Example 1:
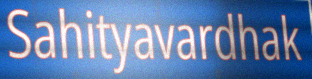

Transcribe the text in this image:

Sahityavardhak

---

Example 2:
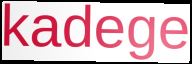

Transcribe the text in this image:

kadege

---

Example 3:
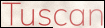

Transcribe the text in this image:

Tuscan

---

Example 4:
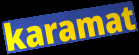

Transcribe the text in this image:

karamat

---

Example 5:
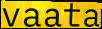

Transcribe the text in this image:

vaata